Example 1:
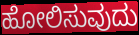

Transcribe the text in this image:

ಹೋಲಿಸುವುದು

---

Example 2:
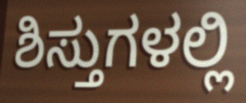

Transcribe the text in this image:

ಶಿಸ್ತುಗಳಲ್ಲಿ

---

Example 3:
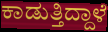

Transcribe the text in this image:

ಕಾಡುತ್ತಿದ್ದಾಳೆ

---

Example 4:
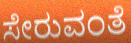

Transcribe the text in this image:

ಸೇರುವಂತೆ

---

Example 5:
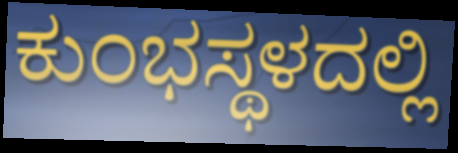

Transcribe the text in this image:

ಕುಂಭಸ್ಥಳದಲ್ಲಿ